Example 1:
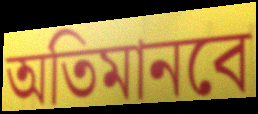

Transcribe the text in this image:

অতিমানবে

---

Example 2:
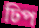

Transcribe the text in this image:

ঢিপ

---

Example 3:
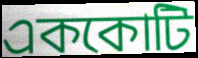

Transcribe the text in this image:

এককোটি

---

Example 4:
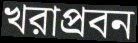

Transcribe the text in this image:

খরাপ্রবন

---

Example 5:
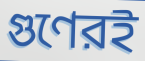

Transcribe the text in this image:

গুণেরই